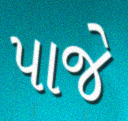
પાજે